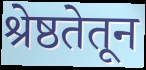
श्रेष्ठतेतून